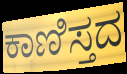
ಕಾಣಿಸ್ತದ